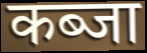
कब्‍जा